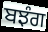
ਬਝੰਗ